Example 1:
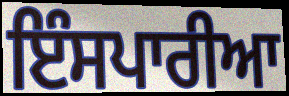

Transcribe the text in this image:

ਇੰਸਪਾਰੀਆ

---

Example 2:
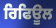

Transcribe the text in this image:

ਰਿਫਿਊਲ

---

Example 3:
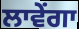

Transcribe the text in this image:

ਲਾਵੇਂਗਾ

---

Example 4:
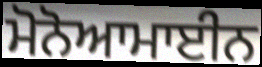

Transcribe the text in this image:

ਮੋਨੋਆਮਾਈਨ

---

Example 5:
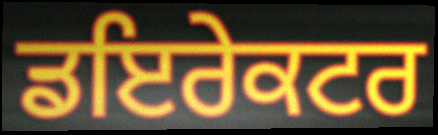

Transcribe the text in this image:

ਡਇਰੇਕਟਰ